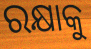
ରକ୍ଷାକୁ